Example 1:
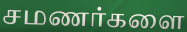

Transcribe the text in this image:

சமணர்களை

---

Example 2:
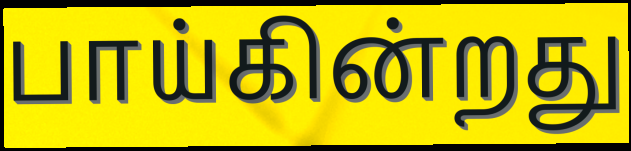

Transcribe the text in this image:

பாய்கின்றது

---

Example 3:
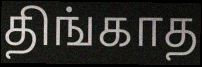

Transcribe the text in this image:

திங்காத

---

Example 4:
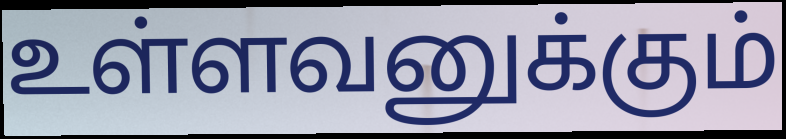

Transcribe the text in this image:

உள்ளவனுக்கும்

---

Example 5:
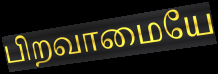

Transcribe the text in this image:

பிறவாமையே